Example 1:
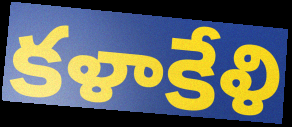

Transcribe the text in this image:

కళాకేళి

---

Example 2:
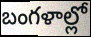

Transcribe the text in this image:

బంగళాల్లో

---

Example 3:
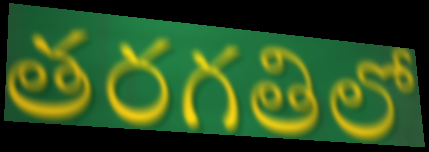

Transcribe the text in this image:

తరగతిలో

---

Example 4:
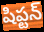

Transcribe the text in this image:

షిప్టన్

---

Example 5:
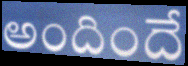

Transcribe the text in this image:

అందిందే